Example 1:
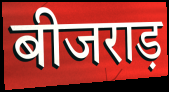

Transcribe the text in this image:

बीजराड़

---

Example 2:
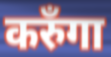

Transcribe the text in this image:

करुँगा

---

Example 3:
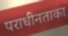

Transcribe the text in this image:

पराधीनताका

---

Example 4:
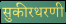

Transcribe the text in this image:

सुकीरथरणी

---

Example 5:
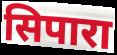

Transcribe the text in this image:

सिपारा